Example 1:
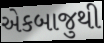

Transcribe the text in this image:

એકબાજુથી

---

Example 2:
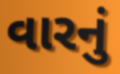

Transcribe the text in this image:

વારનું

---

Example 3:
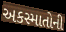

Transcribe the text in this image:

અકસ્માતોની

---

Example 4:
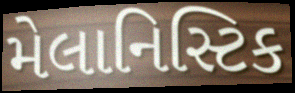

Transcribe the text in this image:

મેલાનિસ્ટિક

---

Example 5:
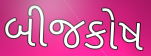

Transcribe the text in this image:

બીજકોષ